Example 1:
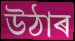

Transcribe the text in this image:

উঠাৰ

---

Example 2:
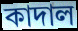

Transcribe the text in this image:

কাদাল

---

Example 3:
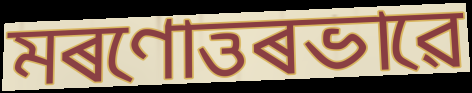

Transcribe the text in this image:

মৰণোত্তৰভাৱে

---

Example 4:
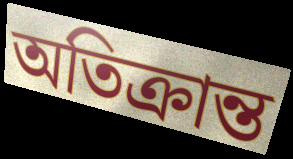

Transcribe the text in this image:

অতিক্ৰান্ত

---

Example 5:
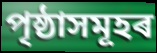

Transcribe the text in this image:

পৃষ্ঠাসমূহৰ